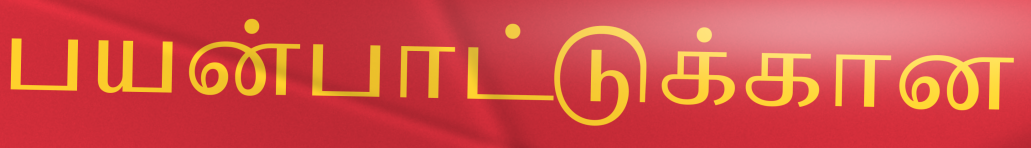
பயன்பாட்டுக்கான